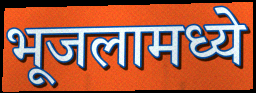
भूजलामध्ये